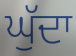
ਘੁੱਦਾ